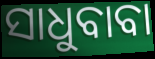
ସାଧୁବାବା